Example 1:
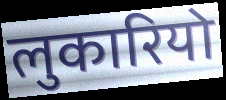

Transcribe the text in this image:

लुकारियो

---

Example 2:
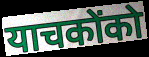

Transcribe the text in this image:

याचकोंको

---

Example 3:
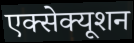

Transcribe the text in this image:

एक्सेक्यूशन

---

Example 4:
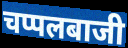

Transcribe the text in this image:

चप्पलबाजी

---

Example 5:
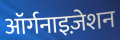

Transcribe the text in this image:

ऑर्गनाइज़ेशन